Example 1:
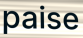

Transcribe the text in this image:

paise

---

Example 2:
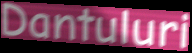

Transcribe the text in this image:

Dantuluri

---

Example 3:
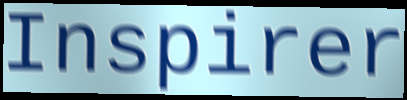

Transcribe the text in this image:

Inspirer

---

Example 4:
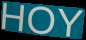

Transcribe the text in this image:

HOY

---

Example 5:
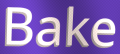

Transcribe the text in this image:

Bake